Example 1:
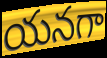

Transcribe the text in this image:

యనగా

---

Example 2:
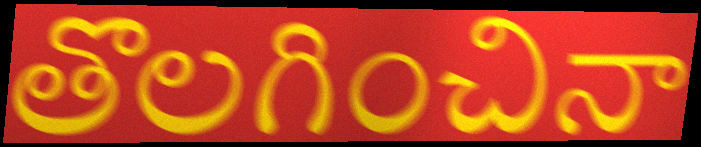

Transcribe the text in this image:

తొలగించినా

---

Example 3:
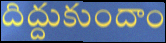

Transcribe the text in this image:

దిద్దుకుందాం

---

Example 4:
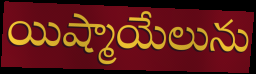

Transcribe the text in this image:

యిష్మాయేలును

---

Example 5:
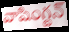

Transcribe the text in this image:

వాషింగ్టన్